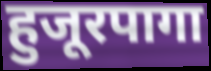
हुजूरपागा